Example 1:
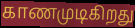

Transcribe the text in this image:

காணமுடிகிறது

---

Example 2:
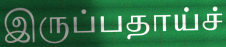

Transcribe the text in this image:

இருப்பதாய்ச்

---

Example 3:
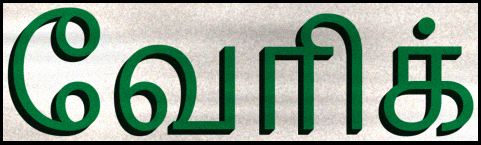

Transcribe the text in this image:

வேரிக்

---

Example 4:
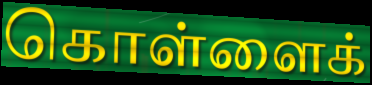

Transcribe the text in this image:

கொள்ளைக்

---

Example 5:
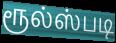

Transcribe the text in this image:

ரூல்ஸ்படி